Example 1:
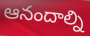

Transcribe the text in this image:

ఆనందాల్ని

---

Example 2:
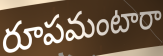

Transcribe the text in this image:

రూపమంటారా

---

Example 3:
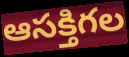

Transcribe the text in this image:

ఆసక్తిగల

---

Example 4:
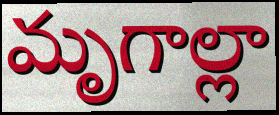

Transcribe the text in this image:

మృగాల్లా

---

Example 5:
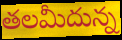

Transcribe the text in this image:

తలమీదున్న